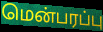
மென்பரப்பு